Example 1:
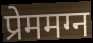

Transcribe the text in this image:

प्रेममग्न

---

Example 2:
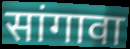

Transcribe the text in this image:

सांगावा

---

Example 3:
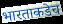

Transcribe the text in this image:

भारताकडेच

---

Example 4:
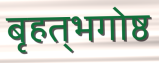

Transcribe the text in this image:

बृहत्‌भगोष्ठ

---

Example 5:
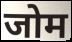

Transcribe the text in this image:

जोम